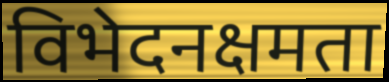
विभेदनक्षमता